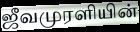
ஜீவமுரளியின்